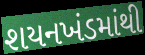
શયનખંડમાંથી